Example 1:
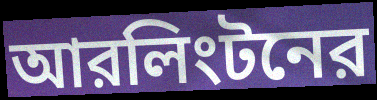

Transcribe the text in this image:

আরলিংটনের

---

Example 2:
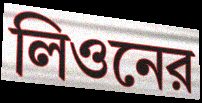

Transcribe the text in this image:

লিওনের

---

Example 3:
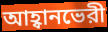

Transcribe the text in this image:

আহ্বানভেরী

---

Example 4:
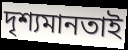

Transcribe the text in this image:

দৃশ্যমানতাই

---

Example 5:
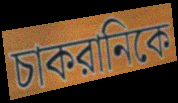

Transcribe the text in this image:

চাকরানিকে